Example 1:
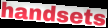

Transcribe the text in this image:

handsets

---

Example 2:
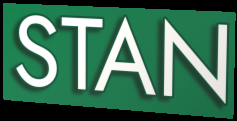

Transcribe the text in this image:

STAN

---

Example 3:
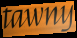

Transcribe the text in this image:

tawny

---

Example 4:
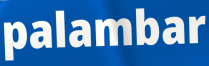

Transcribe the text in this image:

palambar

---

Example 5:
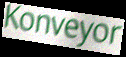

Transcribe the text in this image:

Konveyor